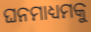
ଘନମାଧ୍ୟମକୁ